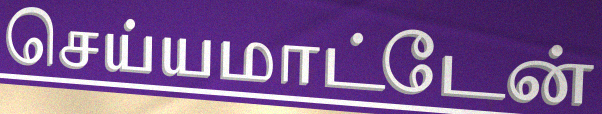
செய்யமாட்டேன்